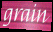
grain